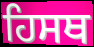
ਹਿਸਥ